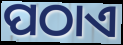
ପଠାଏ